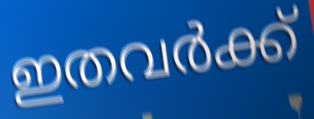
ഇതവർക്ക്